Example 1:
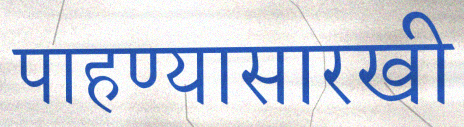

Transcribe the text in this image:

पाहण्यासारखी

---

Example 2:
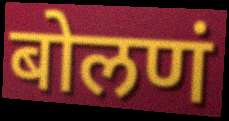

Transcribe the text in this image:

बोलणं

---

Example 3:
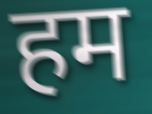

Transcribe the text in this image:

हम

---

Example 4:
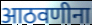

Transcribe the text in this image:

आठवणीना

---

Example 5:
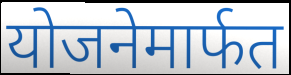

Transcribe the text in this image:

योजनेमार्फत